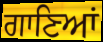
ਗਾਣਿਆਂ